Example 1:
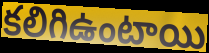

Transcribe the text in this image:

కలిగిఉంటాయి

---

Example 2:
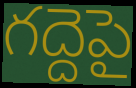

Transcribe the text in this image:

గద్దెపై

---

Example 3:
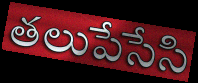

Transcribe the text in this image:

తలుపేసేసి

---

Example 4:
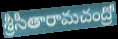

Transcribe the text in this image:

శ్రీసీతారామచంద్రో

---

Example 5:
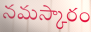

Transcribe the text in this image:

నమస్కారం